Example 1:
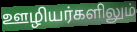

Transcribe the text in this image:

ஊழியர்களிலும்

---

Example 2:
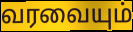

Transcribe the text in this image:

வரவையும்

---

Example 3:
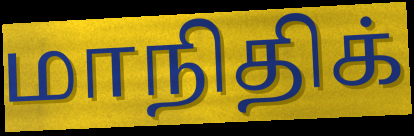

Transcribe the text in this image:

மாநிதிக்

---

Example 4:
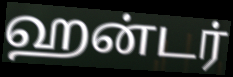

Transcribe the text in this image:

ஹன்டர்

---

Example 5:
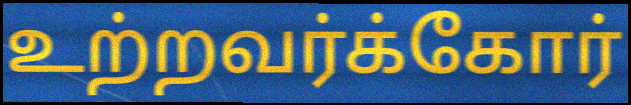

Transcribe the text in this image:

உற்றவர்க்கோர்